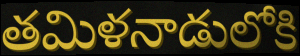
తమిళనాడులోకి